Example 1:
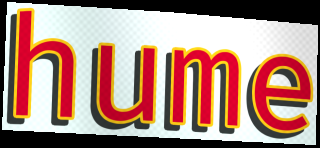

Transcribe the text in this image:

hume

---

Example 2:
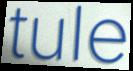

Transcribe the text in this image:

tule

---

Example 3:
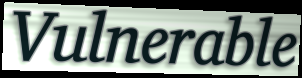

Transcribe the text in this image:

Vulnerable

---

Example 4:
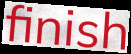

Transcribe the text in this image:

finish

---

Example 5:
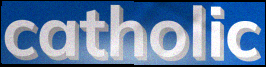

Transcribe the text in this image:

catholic